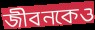
জীবনকেও